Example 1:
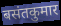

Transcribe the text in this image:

बसंतकुमार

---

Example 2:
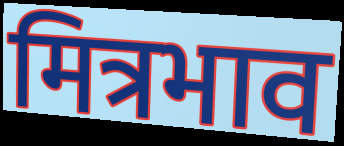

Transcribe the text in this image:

मित्रभाव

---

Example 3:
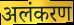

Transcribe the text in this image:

अलंकरण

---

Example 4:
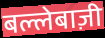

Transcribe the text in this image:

बल्लेबाज़ी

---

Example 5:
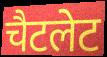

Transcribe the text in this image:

चैटलेट